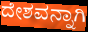
ದೇಶವನ್ನಾಗಿ